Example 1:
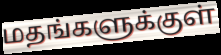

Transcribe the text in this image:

மதங்களுக்குள்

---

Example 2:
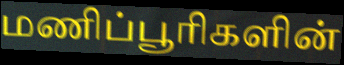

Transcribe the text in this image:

மணிப்பூரிகளின்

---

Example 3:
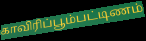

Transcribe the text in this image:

காவிரிப்பூம்பட்டிணம்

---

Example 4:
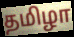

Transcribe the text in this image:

தமிழா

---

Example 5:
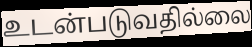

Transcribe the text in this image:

உடன்படுவதில்லை